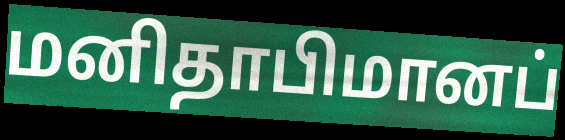
மனிதாபிமானப்